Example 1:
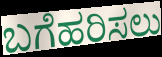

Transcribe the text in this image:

ಬಗೆಹರಿಸಲು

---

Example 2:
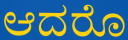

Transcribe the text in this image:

ಆದರೊ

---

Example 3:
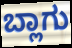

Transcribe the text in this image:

ಬ್ಲಾಗು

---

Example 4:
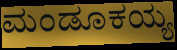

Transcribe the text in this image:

ಮಂಡೂಕಯ್ಯ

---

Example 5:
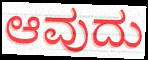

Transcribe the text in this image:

ಆವುದು